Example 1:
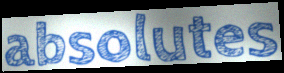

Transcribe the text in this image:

absolutes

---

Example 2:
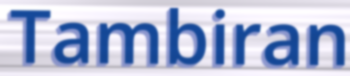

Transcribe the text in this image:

Tambiran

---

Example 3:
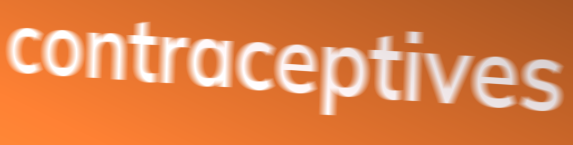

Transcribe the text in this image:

contraceptives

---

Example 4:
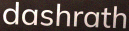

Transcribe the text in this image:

dashrath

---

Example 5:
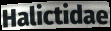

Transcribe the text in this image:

Halictidae